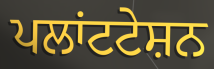
ਪਲਾਂਟਟੇਸ਼ਨ